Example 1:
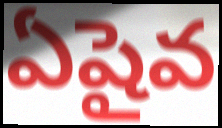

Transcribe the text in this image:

ఏషైవ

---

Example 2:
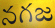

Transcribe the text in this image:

నగజ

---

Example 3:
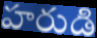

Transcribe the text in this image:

హరుడి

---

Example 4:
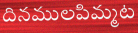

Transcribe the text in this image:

దినములపిమ్మట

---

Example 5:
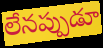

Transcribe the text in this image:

లేనప్పుడూ